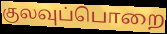
குலவுப்பொறை